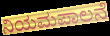
ನಿಯಮಪಾಲನೆ